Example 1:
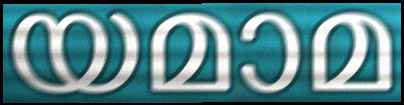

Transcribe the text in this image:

യമാമ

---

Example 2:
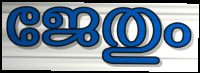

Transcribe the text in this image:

ജേതും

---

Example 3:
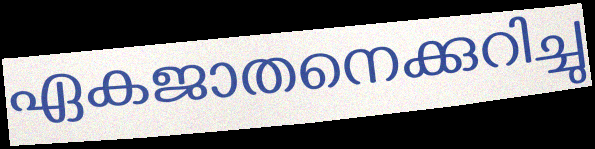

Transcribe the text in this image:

ഏകജാതനെക്കുറിച്ചു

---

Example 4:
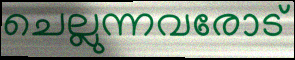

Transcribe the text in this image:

ചെല്ലുന്നവരോട്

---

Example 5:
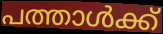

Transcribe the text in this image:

പത്താൾക്ക്